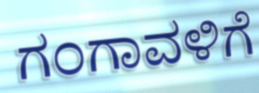
ಗಂಗಾವಳಿಗೆ